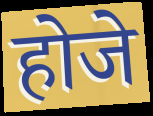
होजे